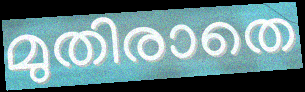
മുതിരാതെ